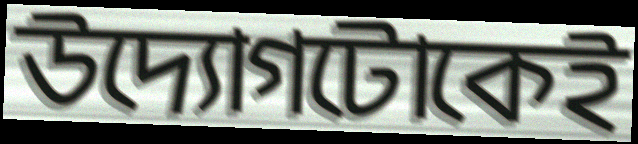
উদ্যোগটোকেই